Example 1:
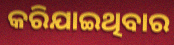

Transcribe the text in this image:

କରିଯାଇଥିବାର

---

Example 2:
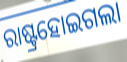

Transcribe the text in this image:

ରାଷ୍ଟ୍ରହୋଇଗଲା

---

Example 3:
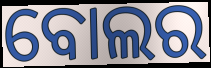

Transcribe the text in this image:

ବୋଲର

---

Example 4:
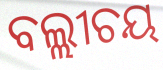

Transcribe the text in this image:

ବଲ୍ଲୀଚୟ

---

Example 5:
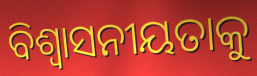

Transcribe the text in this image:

ବିଶ୍ୱାସନୀୟତାକୁ